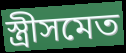
স্ত্রীসমেত